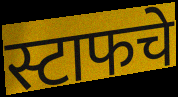
स्टाफचे